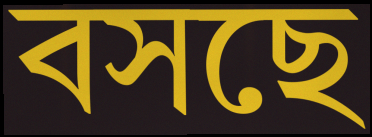
বসছে